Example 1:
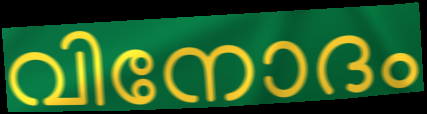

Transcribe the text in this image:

വിനോദം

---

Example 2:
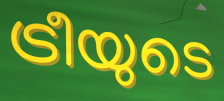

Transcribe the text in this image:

ട്രീയുടെ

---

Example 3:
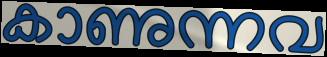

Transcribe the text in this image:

കാണുന്നവ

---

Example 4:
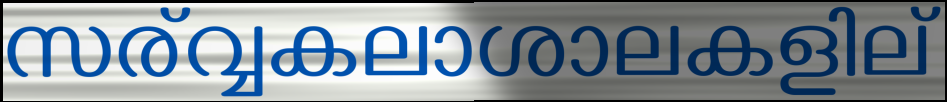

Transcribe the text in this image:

സര്വ്വകലാശാലകളില്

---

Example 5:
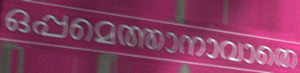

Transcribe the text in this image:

ഒപ്പമെത്താനാവാതെ